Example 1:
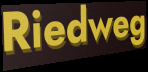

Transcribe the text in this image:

Riedweg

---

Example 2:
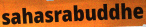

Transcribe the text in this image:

sahasrabuddhe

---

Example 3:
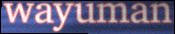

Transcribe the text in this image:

wayuman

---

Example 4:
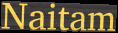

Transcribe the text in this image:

Naitam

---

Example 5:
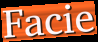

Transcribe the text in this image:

Facie